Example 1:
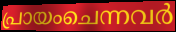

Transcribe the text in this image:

പ്രായംചെന്നവർ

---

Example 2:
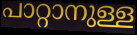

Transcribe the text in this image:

പാറ്റാനുള്ള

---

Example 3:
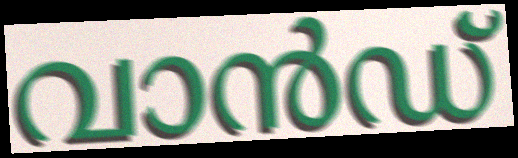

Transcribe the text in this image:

വാൻഡ്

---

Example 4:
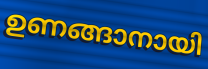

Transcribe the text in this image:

ഉണങ്ങാനായി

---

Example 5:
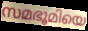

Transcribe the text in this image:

സമഭൂമിയെ